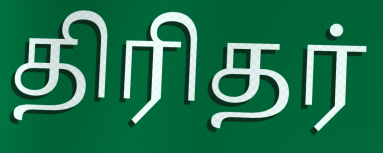
திரிதர்